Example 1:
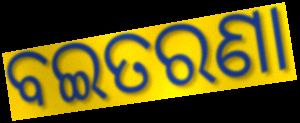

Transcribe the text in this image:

ବଇତରଣା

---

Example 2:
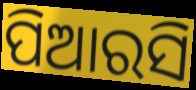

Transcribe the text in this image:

ପିଆରସି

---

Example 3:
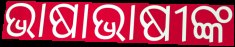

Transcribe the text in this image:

ଭାଷାଭାଷୀଙ୍କ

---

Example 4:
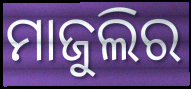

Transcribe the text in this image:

ମାଜୁଲିର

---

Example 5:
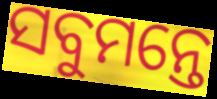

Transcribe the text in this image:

ସବୁମନ୍ତେ